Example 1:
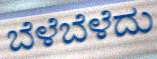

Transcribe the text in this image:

ಬೆಳೆಬೆಳೆದು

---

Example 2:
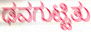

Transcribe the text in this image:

ಢವಗುಟ್ಟಿತು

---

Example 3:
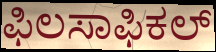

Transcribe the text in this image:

ಫಿಲಸಾಫಿಕಲ್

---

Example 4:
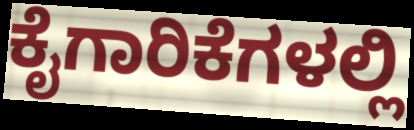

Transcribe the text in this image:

ಕೈಗಾರಿಕೆಗಳಲ್ಲಿ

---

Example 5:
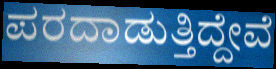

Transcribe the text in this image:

ಪರದಾಡುತ್ತಿದ್ದೇವೆ